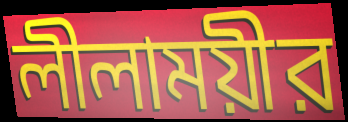
লীলাময়ীর